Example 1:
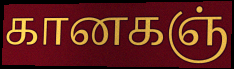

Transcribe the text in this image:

கானகஞ்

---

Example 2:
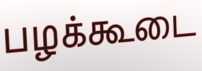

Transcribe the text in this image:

பழக்கூடை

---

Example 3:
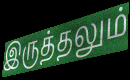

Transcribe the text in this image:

இருத்தலும்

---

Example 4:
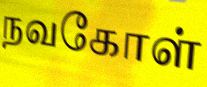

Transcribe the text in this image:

நவகோள்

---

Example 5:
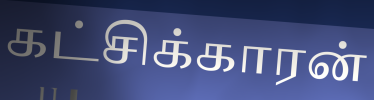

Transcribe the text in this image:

கட்சிக்காரன்